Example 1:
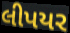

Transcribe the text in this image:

લીપયર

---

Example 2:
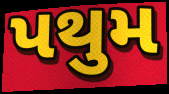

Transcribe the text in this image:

પથુમ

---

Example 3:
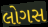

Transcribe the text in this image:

લોગસ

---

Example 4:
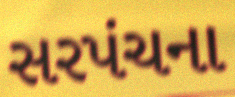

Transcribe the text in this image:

સરપંચના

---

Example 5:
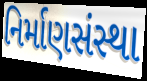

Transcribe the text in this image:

નિર્માણસંસ્થા